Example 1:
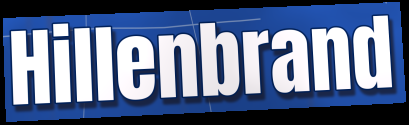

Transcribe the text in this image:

Hillenbrand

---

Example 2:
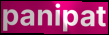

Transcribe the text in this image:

panipat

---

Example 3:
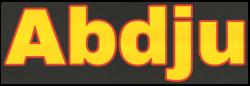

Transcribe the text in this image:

Abdju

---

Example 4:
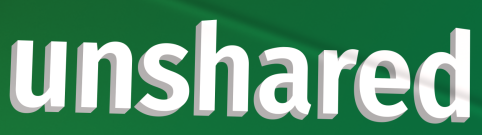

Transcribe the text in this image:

unshared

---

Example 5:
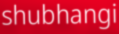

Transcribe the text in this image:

shubhangi